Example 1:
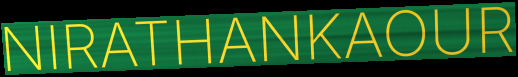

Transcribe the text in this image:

NIRATHANKAOUR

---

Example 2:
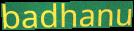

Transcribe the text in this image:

badhanu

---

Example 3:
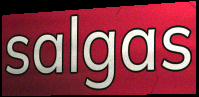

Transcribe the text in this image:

salgas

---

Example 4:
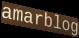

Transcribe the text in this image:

amarblog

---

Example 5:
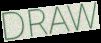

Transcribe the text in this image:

DRAW